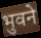
भुवने